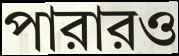
পারারও